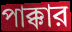
পাক্কার